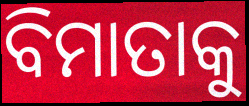
ବିମାତାକୁ